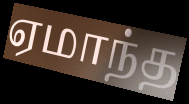
ஏமாந்த